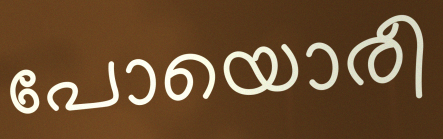
പോയൊരീ